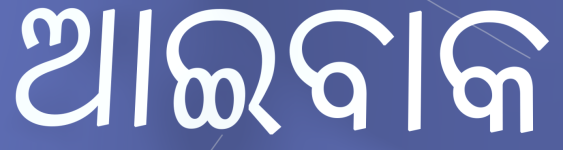
ଆଇବାକ